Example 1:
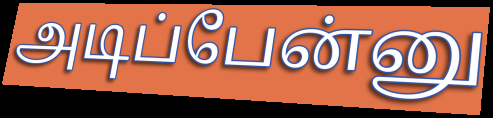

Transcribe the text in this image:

அடிப்பேன்னு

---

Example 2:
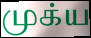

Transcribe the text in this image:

முக்ய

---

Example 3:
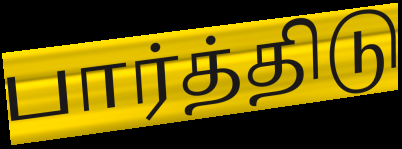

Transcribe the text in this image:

பார்த்திடு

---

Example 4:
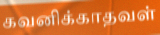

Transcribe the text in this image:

கவனிக்காதவள்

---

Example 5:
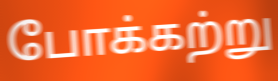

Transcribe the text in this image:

போக்கற்று